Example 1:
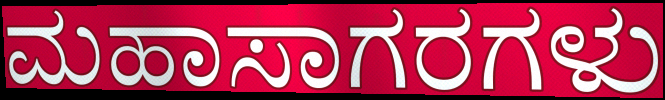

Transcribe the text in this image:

ಮಹಾಸಾಗರಗಳು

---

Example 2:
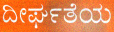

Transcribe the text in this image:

ದೀರ್ಘತೆಯ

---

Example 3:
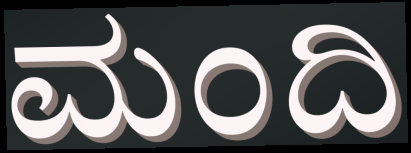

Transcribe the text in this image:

ಮಂದಿ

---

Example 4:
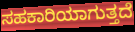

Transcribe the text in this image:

ಸಹಕಾರಿಯಾಗುತ್ತದೆ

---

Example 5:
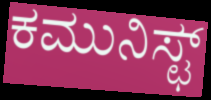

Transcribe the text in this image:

ಕಮುನಿಸ್ಟ್